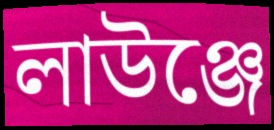
লাউঞ্জে